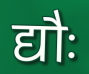
द्यौः